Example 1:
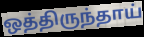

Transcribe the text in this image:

ஒத்திருந்தாய்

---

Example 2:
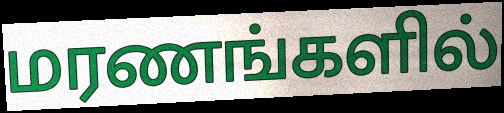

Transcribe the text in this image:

மரணங்களில்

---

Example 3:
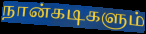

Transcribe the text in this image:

நான்கடிகளும்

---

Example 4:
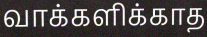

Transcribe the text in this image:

வாக்களிக்காத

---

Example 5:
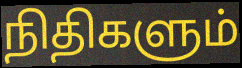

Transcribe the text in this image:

நிதிகளும்